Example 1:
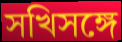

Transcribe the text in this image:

সখিসঙ্গে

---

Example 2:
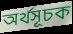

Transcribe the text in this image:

অর্থসূচক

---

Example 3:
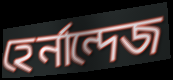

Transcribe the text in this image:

হের্নান্দেজ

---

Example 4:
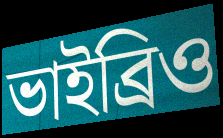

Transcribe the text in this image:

ভাইব্রিও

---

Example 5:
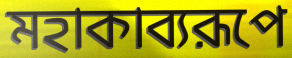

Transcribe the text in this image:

মহাকাব্যরূপে